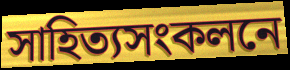
সাহিত্যসংকলনে